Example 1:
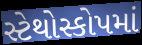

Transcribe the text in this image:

સ્ટેથોસ્કોપમાં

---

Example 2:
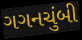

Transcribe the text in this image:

ગગનચુંબી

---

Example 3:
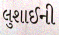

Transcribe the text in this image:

લુશાઈની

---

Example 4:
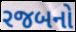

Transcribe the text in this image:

રજબનો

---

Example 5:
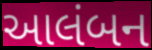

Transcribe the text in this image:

આલંબન